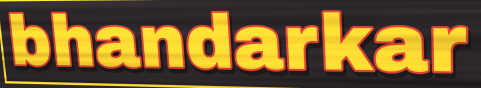
bhandarkar